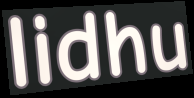
lidhu